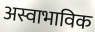
अस्वाभाविक